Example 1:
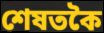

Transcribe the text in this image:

শেষতকৈ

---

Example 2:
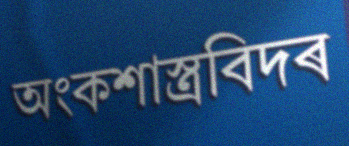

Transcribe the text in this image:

অংকশাস্ত্ৰবিদৰ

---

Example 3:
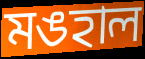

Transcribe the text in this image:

মঙহাল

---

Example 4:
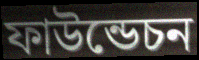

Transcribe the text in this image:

ফাউন্ডেচন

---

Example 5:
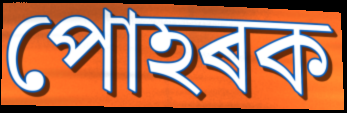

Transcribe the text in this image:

পোহৰক